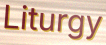
Liturgy